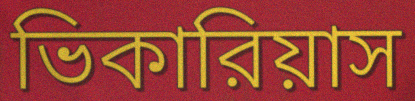
ভিকারিয়াস